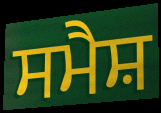
ਸਮੈਸ਼